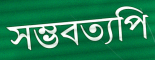
সম্ভবত্যপি